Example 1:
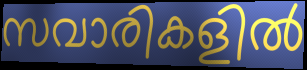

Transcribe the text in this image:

സവാരികളിൽ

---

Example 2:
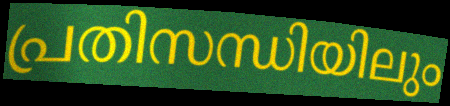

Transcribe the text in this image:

പ്രതിസന്ധിയിലും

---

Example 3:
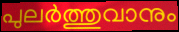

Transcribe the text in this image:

പുലർത്തുവാനും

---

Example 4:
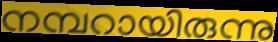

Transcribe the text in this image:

നമ്പറായിരുന്നു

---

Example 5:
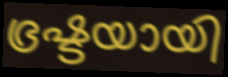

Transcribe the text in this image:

ഭ്രഷ്ടയായി